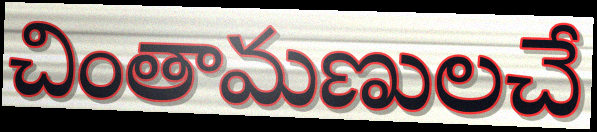
చింతామణులచే